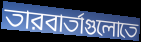
তারবার্তাগুলোতে